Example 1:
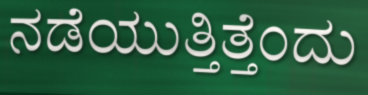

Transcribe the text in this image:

ನಡೆಯುತ್ತಿತ್ತೆಂದು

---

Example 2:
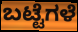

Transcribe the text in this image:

ಬಟ್ಟೆಗಳೆ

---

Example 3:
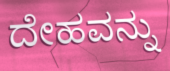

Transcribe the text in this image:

ದೇಹವನ್ನು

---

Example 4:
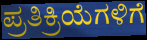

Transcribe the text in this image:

ಪ್ರತಿಕ್ರಿಯೆಗಳಿಗೆ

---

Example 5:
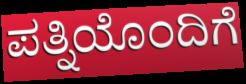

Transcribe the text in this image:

ಪತ್ನಿಯೊಂದಿಗೆ